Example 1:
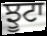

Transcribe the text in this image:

ਝੂਟਾ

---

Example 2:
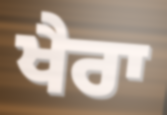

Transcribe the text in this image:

ਖੈਰਾ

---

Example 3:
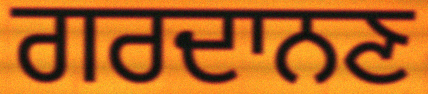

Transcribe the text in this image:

ਗਰਦਾਨਣ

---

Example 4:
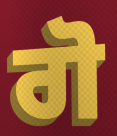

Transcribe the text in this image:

ਗੋ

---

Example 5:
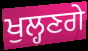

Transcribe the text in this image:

ਖੁਲ੍ਹਣਗੇ